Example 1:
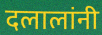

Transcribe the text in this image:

दलालांनी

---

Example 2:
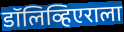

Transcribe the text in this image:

डॉलिव्हिएराला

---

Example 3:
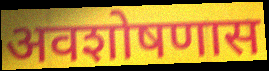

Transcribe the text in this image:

अवशोषणास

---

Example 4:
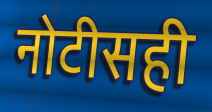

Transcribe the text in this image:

नोटीसही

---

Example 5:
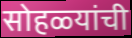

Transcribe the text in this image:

सोहळ्यांची